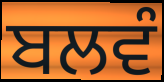
ਬਲਵੰ